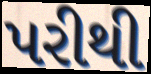
પરીથી